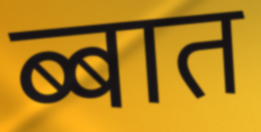
ब्बात